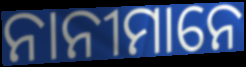
ନାନୀମାନେ